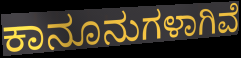
ಕಾನೂನುಗಳಾಗಿವೆ